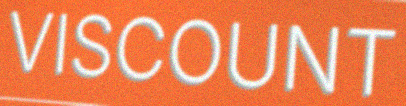
VISCOUNT